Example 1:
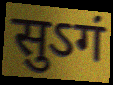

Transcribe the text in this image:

सुऽगं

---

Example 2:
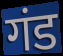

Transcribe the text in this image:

गंड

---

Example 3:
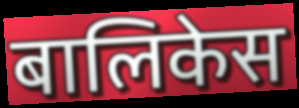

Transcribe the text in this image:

बालिकेस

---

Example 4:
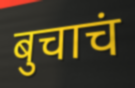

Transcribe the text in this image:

बुचाचं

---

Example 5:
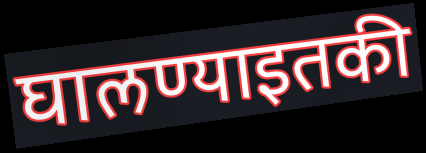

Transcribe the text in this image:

घालण्याइतकी